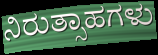
ನಿರುತ್ಸಾಹಗಳು